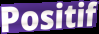
Positif